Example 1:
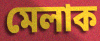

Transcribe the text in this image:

মেলাক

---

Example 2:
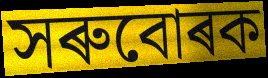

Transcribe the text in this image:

সৰুবোৰক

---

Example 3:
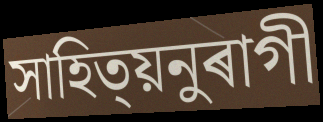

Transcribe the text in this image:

সাহিত্য়নুৰাগী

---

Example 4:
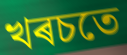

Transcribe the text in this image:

খৰচতে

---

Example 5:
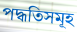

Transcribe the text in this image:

পদ্ধতিসমূহ